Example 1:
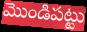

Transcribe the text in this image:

మొండిపట్టు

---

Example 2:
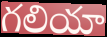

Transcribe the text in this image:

గలియా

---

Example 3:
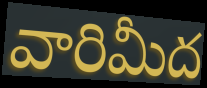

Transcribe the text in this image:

వారిమీద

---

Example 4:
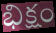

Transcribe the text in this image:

భిక్షం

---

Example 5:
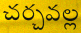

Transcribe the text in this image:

చర్చవల్ల